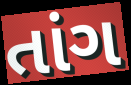
તાંગ